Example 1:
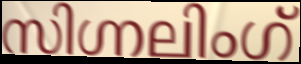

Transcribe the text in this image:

സിഗ്നലിംഗ്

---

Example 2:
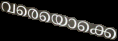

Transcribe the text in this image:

വരെയൊക്കെ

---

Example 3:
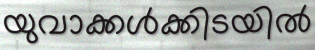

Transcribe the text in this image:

യുവാക്കൾക്കിടയിൽ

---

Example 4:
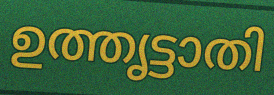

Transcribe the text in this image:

ഉത്തൃട്ടാതി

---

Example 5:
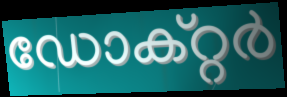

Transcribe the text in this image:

ഡോക്റ്റർ